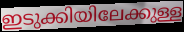
ഇടുക്കിയിലേക്കുള്ള